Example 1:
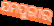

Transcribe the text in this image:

ଯମପୁରୀର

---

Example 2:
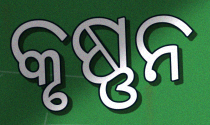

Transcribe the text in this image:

କୃଷ୍ଣନ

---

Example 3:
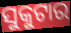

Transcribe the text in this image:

ସୁକୁଟାର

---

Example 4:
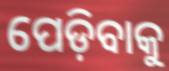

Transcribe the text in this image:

ପେଡ଼ିବାକୁ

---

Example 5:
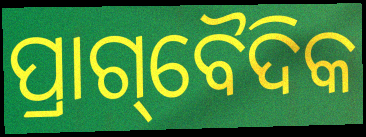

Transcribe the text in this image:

ପ୍ରାଗ୍‌ବୈଦିକ